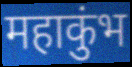
महाकुंभ